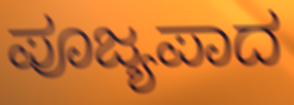
ಪೂಜ್ಯಪಾದ